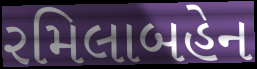
રમિલાબહેન